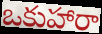
ఒకుహారా